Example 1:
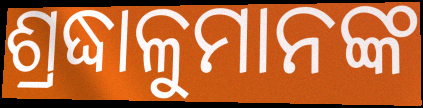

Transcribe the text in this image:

ଶ୍ରଦ୍ଧାଳୁମାନଙ୍କ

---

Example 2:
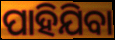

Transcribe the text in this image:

ପାହିଯିବା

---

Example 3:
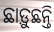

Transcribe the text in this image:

ଛାଡ଼ୁଛନ୍ତି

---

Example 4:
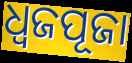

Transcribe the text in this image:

ଧ୍ୱଜପୂଜା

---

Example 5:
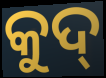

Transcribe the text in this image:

କୁଦ୍